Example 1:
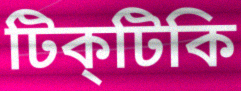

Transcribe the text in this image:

টিক্‌টিকি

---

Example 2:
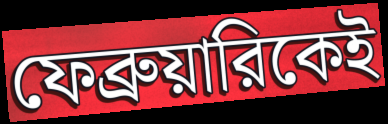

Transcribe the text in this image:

ফেব্রুয়ারিকেই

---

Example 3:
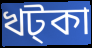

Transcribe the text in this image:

খট্‌কা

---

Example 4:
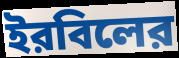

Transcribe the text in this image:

ইরবিলের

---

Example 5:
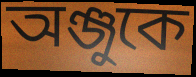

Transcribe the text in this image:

অঞ্জুকে